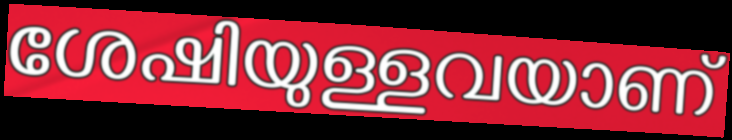
ശേഷിയുള്ളവയാണ്